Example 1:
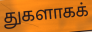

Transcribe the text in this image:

துகளாகக்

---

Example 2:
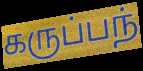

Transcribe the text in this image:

கருப்பந்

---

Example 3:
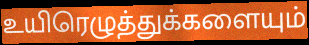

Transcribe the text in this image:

உயிரெழுத்துக்களையும்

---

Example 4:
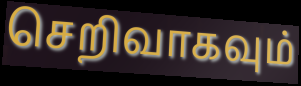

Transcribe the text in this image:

செறிவாகவும்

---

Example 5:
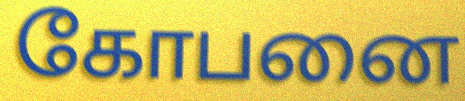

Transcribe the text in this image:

கோபனை